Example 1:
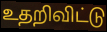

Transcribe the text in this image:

உதறிவிட்டு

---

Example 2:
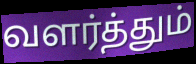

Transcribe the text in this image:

வளர்த்தும்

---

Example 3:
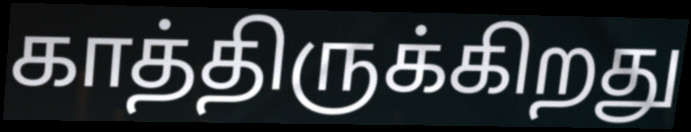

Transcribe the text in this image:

காத்திருக்கிறது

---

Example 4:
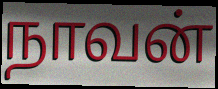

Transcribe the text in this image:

நாவன்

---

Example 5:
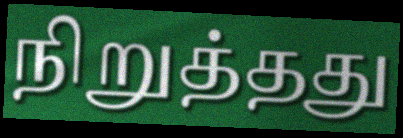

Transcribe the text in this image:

நிறுத்தது